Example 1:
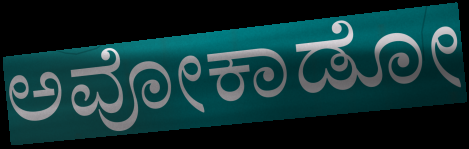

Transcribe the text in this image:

ಅವೋಕಾಡೋ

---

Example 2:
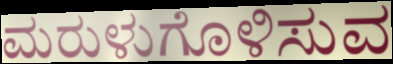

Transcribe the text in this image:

ಮರುಳುಗೊಳಿಸುವ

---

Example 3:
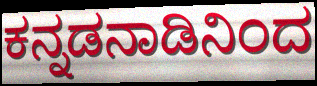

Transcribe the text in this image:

ಕನ್ನಡನಾಡಿನಿಂದ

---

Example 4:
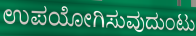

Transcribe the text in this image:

ಉಪಯೋಗಿಸುವುದುಂಟು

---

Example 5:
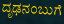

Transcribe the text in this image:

ದೃಢನಂಬುಗೆ